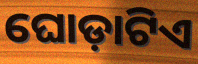
ଘୋଡ଼ାଟିଏ